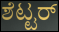
ಶೆಟ್ಟರ್